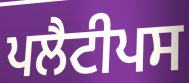
ਪਲੈਟੀਪਸ